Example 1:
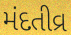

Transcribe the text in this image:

મંદતીવ્ર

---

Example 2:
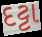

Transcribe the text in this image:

દટ્ટા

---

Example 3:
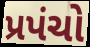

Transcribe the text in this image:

પ્રપંચો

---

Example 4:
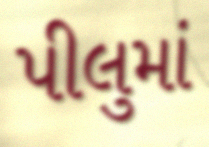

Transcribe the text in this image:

પીલુમાં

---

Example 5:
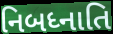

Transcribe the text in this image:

નિબધ્નાતિ